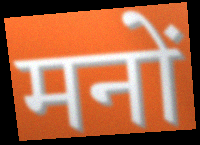
मनों